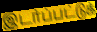
இடர்ப்பட்டுக்